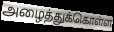
அழைத்துக்கொள்ள